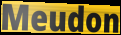
Meudon